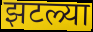
झटल्या